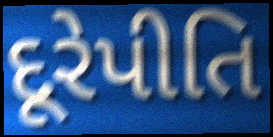
દૂરેપીતિ